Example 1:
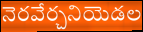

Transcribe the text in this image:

నెరవేర్చనియెడల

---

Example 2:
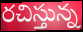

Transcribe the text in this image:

రచిస్తున్న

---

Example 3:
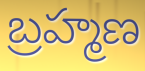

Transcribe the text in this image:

బ్రహ్మణ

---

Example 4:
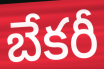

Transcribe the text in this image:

బేకరీ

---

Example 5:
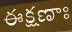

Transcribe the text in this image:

ఈక్షణాః